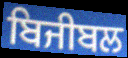
ਬਿਜੀਬਲ